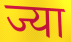
ज्या